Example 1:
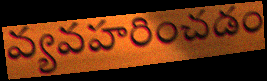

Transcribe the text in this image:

వ్యవహరించడం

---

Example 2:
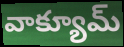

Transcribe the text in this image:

వాక్యూమ్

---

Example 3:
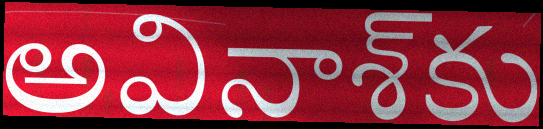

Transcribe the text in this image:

అవినాశ్‌కు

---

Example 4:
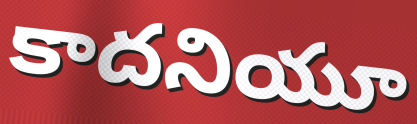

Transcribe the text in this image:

కాదనియూ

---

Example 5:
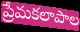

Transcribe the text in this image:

ప్రేమకలాపాల